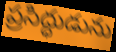
ప్రసిద్ధుడును